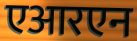
एआरएन